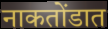
नाकतोंडात